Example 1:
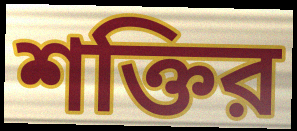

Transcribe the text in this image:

শক্তির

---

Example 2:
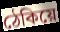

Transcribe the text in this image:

ঠেকিয়ে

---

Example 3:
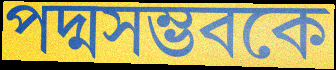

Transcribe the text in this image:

পদ্মসম্ভবকে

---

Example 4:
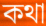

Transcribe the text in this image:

কথা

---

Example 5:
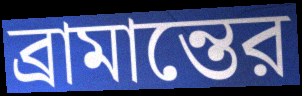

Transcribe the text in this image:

ব্রামান্তের